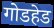
गोडहेड